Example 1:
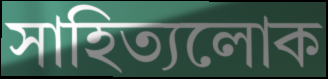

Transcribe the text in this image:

সাহিত্যলোক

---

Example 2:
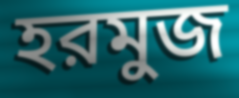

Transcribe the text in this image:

হরমুজ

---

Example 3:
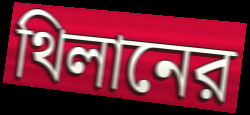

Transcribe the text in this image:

থিলানের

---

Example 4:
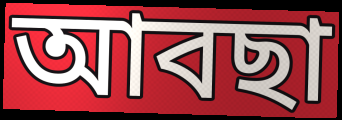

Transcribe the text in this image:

আবছা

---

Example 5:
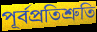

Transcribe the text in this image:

পূর্বপ্রতিশ্রুতি